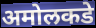
अमोलकडे